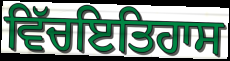
ਵਿੱਚਇਤਿਹਾਸ